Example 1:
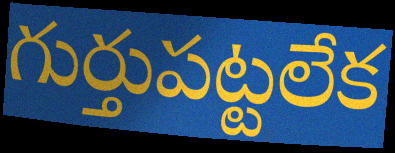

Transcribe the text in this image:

గుర్తుపట్టలేక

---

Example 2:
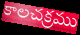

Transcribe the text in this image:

కాలచక్రము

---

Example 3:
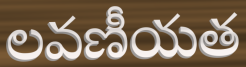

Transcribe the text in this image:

లవణీయత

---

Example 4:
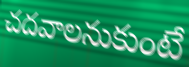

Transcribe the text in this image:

చదవాలనుకుంటే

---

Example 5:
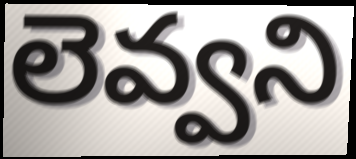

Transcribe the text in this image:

లెవ్వని